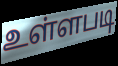
உள்ளபடி